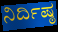
ನಿರ್ದಿಷ್ಠ